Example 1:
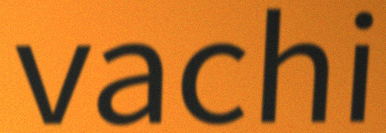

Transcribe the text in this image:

vachi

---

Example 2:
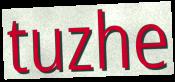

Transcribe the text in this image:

tuzhe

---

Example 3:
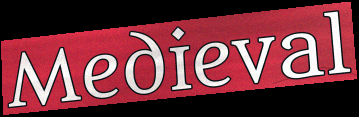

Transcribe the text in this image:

Medieval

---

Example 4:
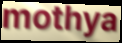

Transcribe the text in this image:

mothya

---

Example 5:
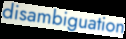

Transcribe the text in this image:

disambiguation